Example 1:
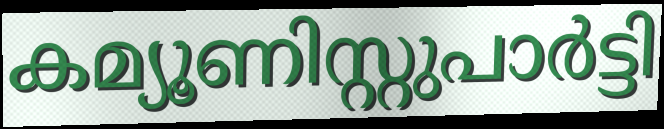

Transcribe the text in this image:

കമ്യൂണിസ്റ്റുപാർട്ടി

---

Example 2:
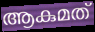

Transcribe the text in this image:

ആകുമത്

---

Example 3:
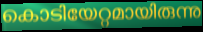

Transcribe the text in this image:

കൊടിയേറ്റമായിരുന്നു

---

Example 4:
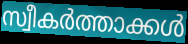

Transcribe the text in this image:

സ്വീകർത്താക്കൾ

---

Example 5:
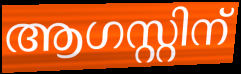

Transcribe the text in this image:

ആഗസ്റ്റിന്